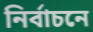
নিৰ্বাচনে